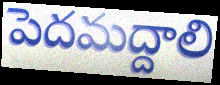
పెదమద్దాలి